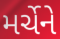
મર્ચેને